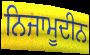
ਨਿਜਾਮੂਦੀਨ